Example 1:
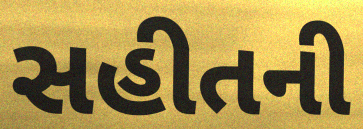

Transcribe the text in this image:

સહીતની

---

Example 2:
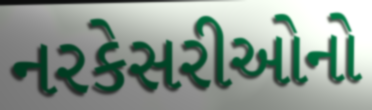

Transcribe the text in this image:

નરકેસરીઓનો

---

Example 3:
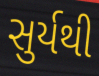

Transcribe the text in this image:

સુર્યથી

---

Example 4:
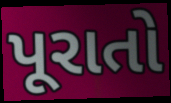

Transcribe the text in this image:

પૂરાતો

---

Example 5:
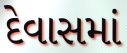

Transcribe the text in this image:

દેવાસમાં